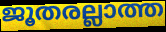
ജൂതരല്ലാത്ത